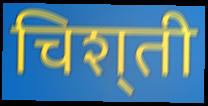
चिश्ती